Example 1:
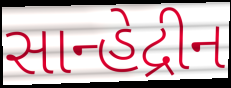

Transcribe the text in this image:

સાન્હેદ્રીન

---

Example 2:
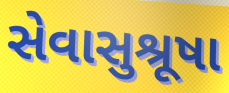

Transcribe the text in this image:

સેવાસુશ્રૂષા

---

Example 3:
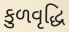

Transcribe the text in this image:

કુળવૃદ્ધિ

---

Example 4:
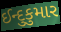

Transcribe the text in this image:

ઈન્દુકુમાર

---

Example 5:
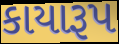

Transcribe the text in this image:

કાયારૂપ